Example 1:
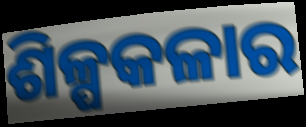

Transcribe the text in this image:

ଶିଳ୍ପକଳାର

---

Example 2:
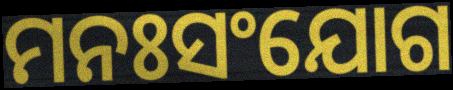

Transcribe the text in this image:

ମନଃସଂଯୋଗ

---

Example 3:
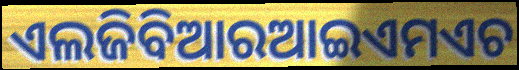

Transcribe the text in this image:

ଏଲଜିବିଆରଆଇଏମଏଚ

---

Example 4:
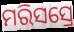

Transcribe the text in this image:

ମରିସସ୍ରେ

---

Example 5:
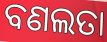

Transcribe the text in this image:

ବଣଲତା